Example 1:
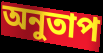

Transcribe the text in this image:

অনুতাপ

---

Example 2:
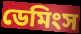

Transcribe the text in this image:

ডেমিংস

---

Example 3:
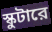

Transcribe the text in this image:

স্কুটারে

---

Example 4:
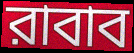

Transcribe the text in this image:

রাবাব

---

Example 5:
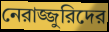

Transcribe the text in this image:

নেরাজ্জুরিদের